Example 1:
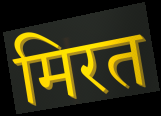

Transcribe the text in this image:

मिरत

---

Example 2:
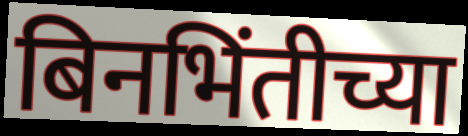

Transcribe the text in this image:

बिनभिंतीच्या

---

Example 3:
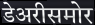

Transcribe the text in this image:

डेअरीसमोर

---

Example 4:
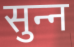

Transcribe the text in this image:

सुन्न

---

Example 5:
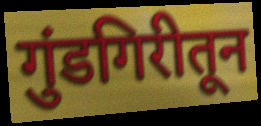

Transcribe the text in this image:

गुंडगिरीतून